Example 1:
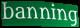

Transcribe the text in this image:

banning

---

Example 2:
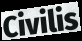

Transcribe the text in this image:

Civilis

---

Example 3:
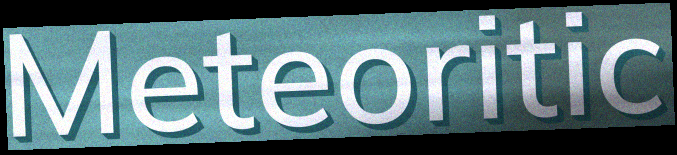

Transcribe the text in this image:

Meteoritic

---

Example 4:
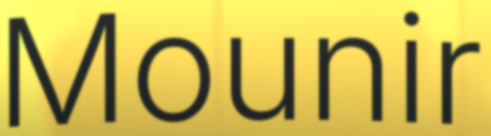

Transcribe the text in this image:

Mounir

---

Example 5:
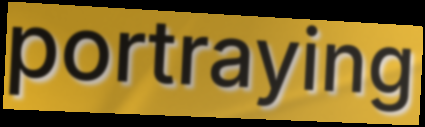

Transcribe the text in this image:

portraying